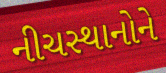
નીચસ્થાનોને